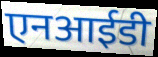
एनआईडी